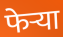
फेऱ्या